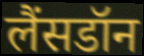
लैंसडॉन